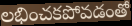
లభించకపోవడంతో